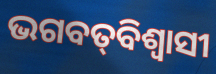
ଭଗବତ୍‌ବିଶ୍ଵାସୀ